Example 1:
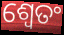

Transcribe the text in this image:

ଶ୍ଵେତଂ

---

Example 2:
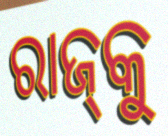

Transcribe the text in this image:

ରାଜ୍‍କୁ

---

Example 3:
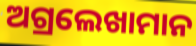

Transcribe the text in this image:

ଅଗ୍ରଲେଖାମାନ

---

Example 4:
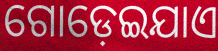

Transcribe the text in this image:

ଗୋଡ଼େଇଯାଏ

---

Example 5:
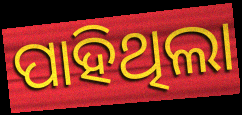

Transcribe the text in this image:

ପାହିଥିଲା